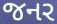
જનર